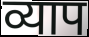
व्याप